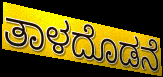
ತಾಳದೊಡನೆ